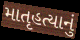
માતૃહત્યાનું